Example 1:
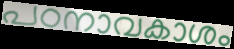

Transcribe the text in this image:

പഠനാവകാശം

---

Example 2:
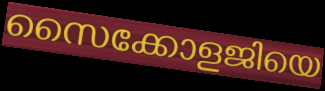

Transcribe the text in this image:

സൈക്കോളജിയെ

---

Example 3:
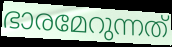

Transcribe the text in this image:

ഭാരമേറുന്നത്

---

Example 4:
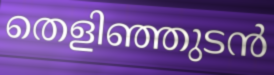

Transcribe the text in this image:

തെളിഞ്ഞുടൻ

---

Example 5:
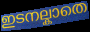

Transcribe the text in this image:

ഇടനല്കാതെ